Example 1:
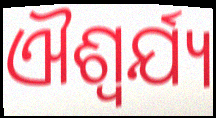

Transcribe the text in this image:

ଐଶ୍ଵର୍ଯ୍ୟ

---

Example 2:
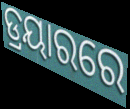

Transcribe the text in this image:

ଡ୍ରୟାରରେ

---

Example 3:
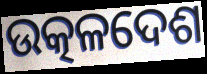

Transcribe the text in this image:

ଉତ୍କଳଦେଶ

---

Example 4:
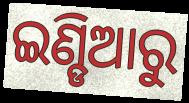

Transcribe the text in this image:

ଇଣ୍ଡିଆରୁ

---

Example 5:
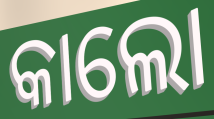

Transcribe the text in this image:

କାଲୋ